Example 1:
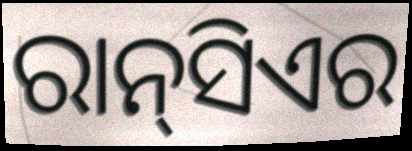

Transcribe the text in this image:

ରାନ୍‌ସିଏର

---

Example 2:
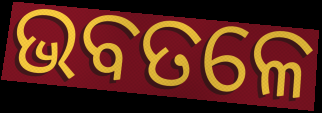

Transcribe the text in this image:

ଭବତଳେ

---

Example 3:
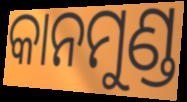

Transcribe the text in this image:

କାନମୁଣ୍ଡ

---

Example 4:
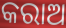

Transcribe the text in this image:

କରାଅ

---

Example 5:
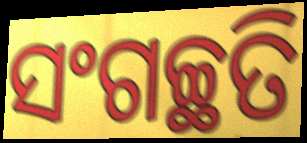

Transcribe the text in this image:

ସଂଗଚ୍ଛତି